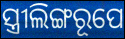
ସ୍ତ୍ରୀଲିଙ୍ଗରୂପେ